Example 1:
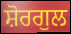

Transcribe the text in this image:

ਸ਼ੋਰਗੁਲ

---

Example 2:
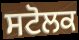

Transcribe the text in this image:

ਸਟੋਲਕ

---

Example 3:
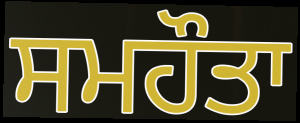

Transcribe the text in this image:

ਸਮਹੌਤਾ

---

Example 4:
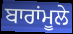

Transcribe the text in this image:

ਬਾਰਾਂਮੂਲੇ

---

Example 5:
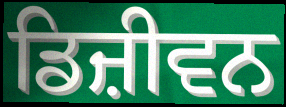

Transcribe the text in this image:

ਡਿਜ਼ੀਵਨ